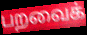
பறவைக்